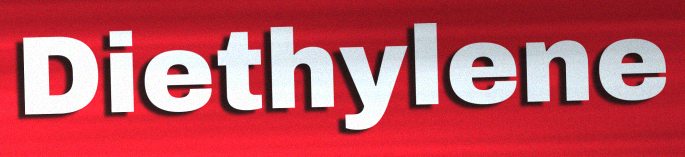
Diethylene